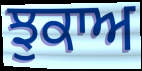
ਝੁਕਾਅ